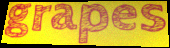
grapes